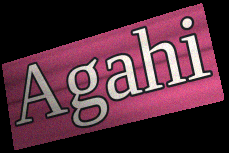
Agahi